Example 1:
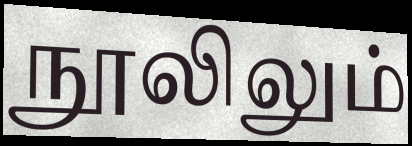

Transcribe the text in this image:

நூலிலும்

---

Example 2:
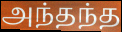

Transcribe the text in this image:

அந்தந்த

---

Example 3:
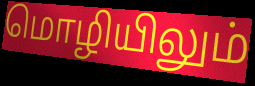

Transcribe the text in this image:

மொழியிலும்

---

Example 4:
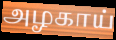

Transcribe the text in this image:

அழகாய்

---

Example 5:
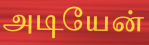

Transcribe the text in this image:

அடியேன்